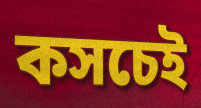
কসচেই